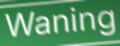
Waning